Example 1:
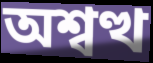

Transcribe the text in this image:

অশ্বত্থ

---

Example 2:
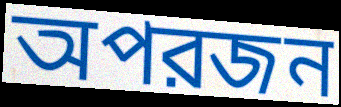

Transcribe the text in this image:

অপরজন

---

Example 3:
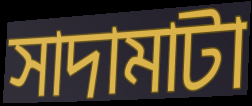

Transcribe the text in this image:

সাদামাটা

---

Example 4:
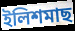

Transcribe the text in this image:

ইলিশমাছ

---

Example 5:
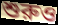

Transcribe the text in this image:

শুরুও